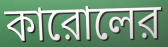
কারোলের